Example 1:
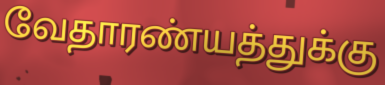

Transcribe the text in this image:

வேதாரண்யத்துக்கு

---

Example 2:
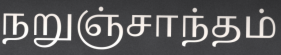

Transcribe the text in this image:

நறுஞ்சாந்தம்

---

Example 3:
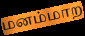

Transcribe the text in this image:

மனம்மாற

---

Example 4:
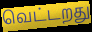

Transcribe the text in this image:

வெட்டறது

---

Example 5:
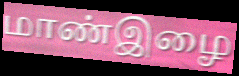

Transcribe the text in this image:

மாண்இழை